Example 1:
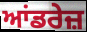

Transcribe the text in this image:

ਆਂਡਰੇਜ਼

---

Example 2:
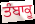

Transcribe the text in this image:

ਤੰਬਾਕੂ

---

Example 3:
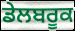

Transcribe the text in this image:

ਡੇਲਬਰੂਕ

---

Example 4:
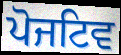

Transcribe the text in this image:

ਪੋਜਟਿਵ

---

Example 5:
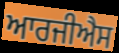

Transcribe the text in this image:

ਆਰਜੀਐਸ